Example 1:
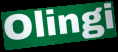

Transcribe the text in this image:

Olingi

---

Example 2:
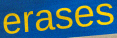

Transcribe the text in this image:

erases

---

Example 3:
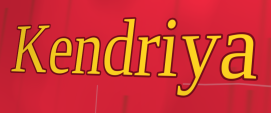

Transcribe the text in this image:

Kendriya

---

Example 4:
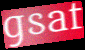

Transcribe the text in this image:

gsat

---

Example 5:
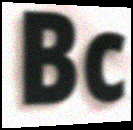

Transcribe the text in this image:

Bc